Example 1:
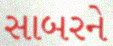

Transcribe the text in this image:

સાબરને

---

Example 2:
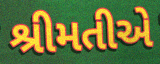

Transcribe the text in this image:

શ્રીમતીએ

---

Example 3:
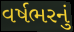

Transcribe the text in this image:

વર્ષભરનું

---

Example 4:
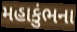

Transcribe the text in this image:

મહાકુંભના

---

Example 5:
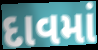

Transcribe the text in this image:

દાવમાં